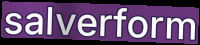
salverform